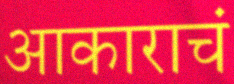
आकाराचं